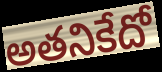
అతనికేదో